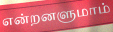
என்றனளுமாம்